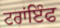
ਟਰਾਂਇੰਫ